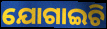
ଯୋଗାଇଚି